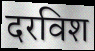
दरविश